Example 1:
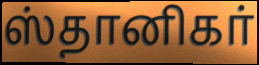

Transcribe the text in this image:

ஸ்தானிகர்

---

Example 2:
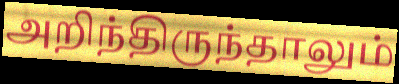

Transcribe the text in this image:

அறிந்திருந்தாலும்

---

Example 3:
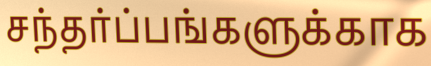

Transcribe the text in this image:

சந்தர்ப்பங்களுக்காக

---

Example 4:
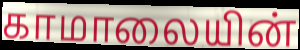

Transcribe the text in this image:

காமாலையின்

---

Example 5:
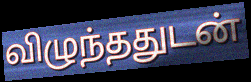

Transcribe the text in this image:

விழுந்ததுடன்